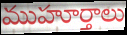
ముహూర్తాలు